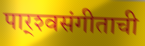
पार्श्वसंगीताची